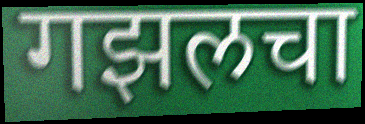
गझलचा